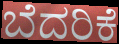
ಬೆದರಿಕೆ